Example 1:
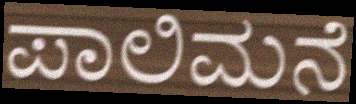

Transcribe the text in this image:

ಪಾಲಿಮನೆ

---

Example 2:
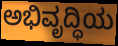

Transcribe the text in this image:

ಅಭಿವೃದ್ಧಿಯ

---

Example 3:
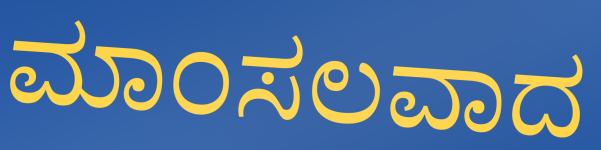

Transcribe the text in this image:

ಮಾಂಸಲವಾದ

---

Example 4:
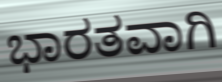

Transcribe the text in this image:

ಭಾರತವಾಗಿ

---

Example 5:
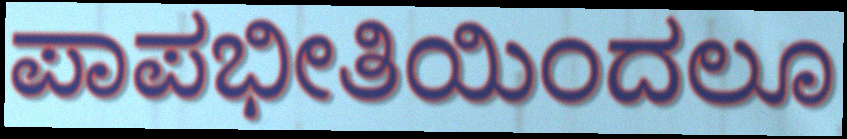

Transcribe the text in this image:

ಪಾಪಭೀತಿಯಿಂದಲೂ